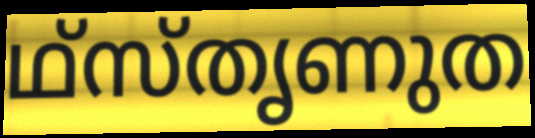
ഥ്സ്തൃണുത